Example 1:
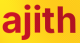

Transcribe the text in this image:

ajith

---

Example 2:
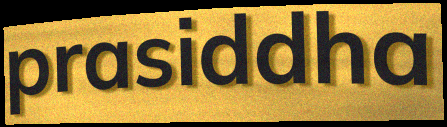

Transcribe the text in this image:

prasiddha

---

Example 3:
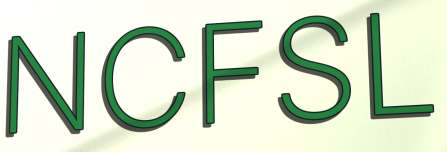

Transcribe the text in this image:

NCFSL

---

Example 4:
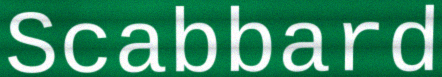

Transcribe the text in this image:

Scabbard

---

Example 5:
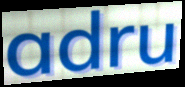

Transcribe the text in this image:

adru